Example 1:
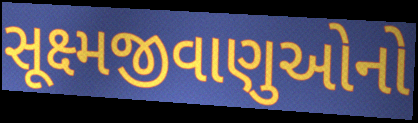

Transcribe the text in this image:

સૂક્ષ્મજીવાણુઓનો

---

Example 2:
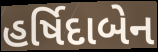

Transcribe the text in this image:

હર્ષિદાબેન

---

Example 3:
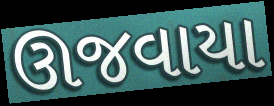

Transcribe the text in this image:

ઊજવાયા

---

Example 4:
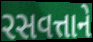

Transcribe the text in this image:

રસવત્તાને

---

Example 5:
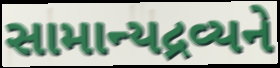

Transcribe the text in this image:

સામાન્યદ્રવ્યને